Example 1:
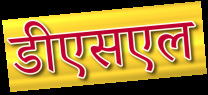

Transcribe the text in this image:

डीएसएल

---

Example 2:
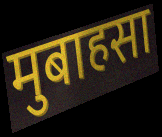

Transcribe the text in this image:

मुबाहसा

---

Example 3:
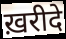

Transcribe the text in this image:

ख़रीदे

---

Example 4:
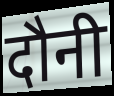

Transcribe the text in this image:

दौनी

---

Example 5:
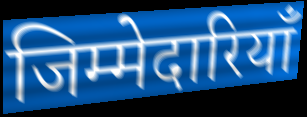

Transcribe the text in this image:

जिम्मेदारियॉं